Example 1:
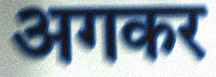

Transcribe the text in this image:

अगकर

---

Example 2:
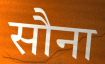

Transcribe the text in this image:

सौना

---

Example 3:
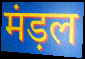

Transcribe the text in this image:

मंड़ल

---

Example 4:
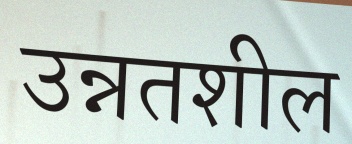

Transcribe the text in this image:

उन्नतशील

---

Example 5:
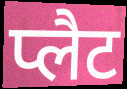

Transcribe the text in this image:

प्लैट